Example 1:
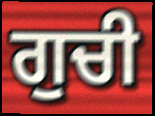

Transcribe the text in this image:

ਗੁਚੀ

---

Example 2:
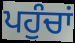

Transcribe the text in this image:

ਪਹੁੰਚਾਂ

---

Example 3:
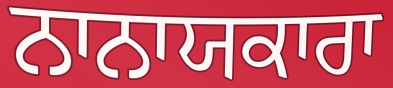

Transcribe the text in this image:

ਨਾਨਾਯਕਾਰਾ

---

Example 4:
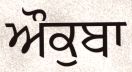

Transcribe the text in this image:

ਔਕੁਬਾ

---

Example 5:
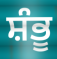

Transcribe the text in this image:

ਸ਼ੰਭੂ